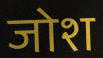
जोश